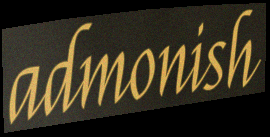
admonish